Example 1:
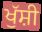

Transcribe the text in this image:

ਖੁੱਸ਼ੀ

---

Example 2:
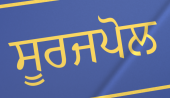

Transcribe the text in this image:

ਸੂਰਜਪੋਲ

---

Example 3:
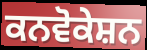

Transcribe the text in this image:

ਕਨਵੋਕੇਸ਼ਨ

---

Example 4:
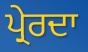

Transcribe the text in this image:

ਪ੍ਰੇਰਦਾ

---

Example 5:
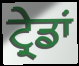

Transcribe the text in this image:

ਟ੍ਰੇਡਾਂ